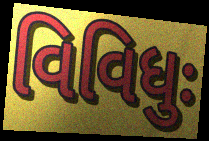
વિવિધુઃ